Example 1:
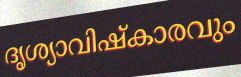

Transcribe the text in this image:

ദൃശ്യാവിഷ്കാരവും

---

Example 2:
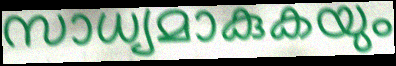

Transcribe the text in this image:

സാധ്യമാകുകയും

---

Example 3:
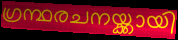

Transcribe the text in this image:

ഗ്രന്ഥരചനയ്ക്കായി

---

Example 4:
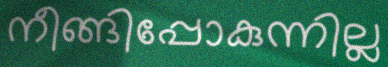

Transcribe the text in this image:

നീങ്ങിപ്പോകുന്നില്ല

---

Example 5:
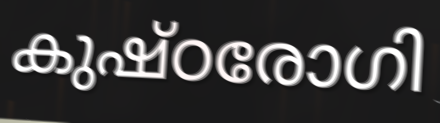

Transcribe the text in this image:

കുഷ്ഠരോഗി